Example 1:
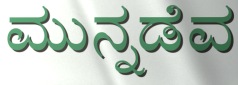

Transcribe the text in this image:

ಮುನ್ನಡೆವ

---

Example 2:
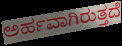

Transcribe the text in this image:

ಅರ್ಹವಾಗಿರುತ್ತದೆ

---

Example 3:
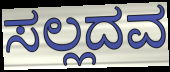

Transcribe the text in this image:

ಸಲ್ಲದವ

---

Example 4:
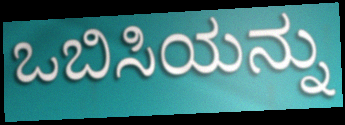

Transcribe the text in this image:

ಒಬಿಸಿಯನ್ನು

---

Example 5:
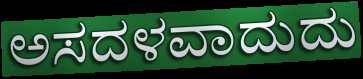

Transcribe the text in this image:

ಅಸದಳವಾದುದು